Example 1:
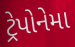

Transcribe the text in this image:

ટ્રેપોનેમા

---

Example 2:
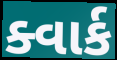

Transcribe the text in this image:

ક્વાર્ક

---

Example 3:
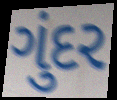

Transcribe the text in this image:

ગુંદર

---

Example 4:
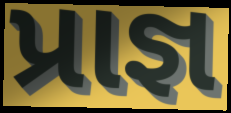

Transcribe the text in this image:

પ્રાજ્ઞ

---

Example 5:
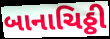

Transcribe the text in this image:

બાનાચિઠ્ઠી